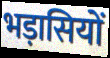
भड़ासियों